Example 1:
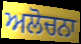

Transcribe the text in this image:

ਅਲੋਚਨਾ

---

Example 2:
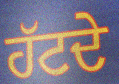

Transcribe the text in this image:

ਹੱਟਦੇ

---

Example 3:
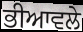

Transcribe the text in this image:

ਭੀਆਵਲੇ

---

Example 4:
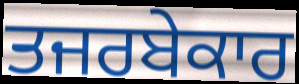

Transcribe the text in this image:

ਤਜਰਬੇਕਾਰ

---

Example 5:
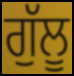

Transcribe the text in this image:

ਗੁੱਲੂ